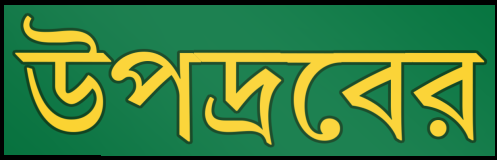
উপদ্রবের